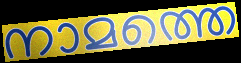
നാമത്തെ